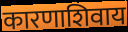
कारणाशिवाय